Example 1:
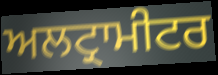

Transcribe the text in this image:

ਅਲਟ੍ਰਾਮੀਟਰ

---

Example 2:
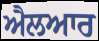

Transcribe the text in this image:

ਐਲਆਰ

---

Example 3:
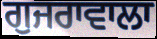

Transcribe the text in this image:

ਗੁਜਰਾਵਾਲਾ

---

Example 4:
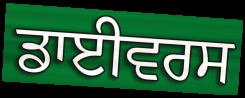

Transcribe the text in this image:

ਡਾਈਵਰਸ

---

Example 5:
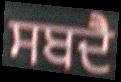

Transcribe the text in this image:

ਸਬਦੈ